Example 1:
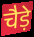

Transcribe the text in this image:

चैड़े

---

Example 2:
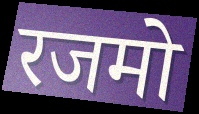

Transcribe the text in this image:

रजमो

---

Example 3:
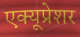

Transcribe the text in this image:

एक्यूप्रेशर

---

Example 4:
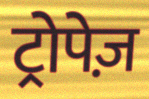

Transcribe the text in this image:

ट्रोपेज़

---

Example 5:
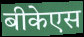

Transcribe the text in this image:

बीकेएस